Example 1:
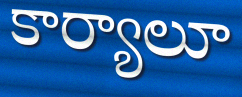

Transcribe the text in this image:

కార్యాలూ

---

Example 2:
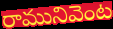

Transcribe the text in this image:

రామునివెంట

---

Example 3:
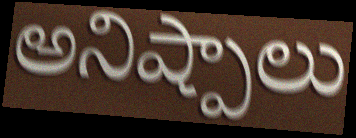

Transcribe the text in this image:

అనిష్పాలు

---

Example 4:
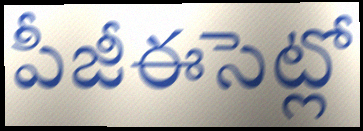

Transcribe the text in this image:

పీజీఈసెట్లో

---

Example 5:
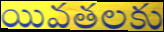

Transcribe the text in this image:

యివతలకు